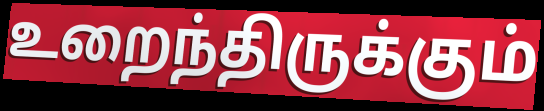
உறைந்திருக்கும்